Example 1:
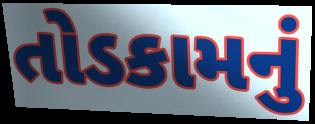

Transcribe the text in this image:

તોડકામનું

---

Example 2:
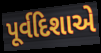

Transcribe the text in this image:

પૂર્વદિશાએ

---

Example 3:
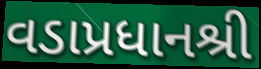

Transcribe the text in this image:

વડાપ્રધાનશ્રી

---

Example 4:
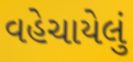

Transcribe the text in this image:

વહેચાયેલું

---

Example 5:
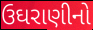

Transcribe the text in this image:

ઉઘરાણીનો